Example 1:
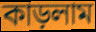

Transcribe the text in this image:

কাড়লাম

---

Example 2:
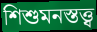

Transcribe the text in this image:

শিশুমনস্তত্ত্ব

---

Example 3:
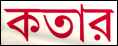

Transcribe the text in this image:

কতার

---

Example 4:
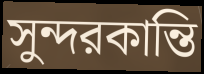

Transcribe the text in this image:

সুন্দরকান্তি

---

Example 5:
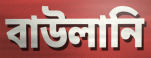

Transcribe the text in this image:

বাউলানি